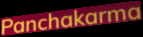
Panchakarma